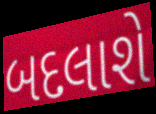
બદલાશે